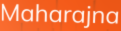
Maharajna